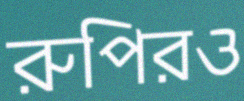
রুপিরও